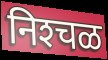
निश्‍चळ